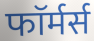
फॉर्मर्स